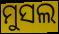
ମୁସଲ